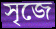
সৃজে